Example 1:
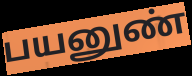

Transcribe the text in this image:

பயனுண்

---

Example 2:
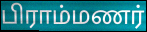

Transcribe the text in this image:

பிராம்மணர்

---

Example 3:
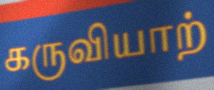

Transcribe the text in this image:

கருவியாற்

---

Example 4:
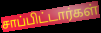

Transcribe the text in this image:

சாப்பிட்டார்கள்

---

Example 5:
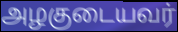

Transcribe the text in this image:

அழகுடையவர்